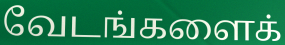
வேடங்களைக்